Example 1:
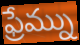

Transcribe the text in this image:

ఫ్రేమ్ను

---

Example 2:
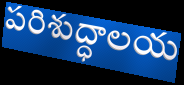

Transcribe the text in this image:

పరిశుద్ధాలయ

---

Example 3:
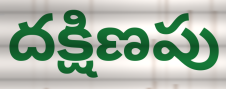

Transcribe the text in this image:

దక్షిణపు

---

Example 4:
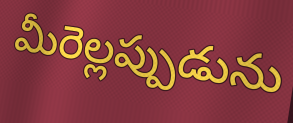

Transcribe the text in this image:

మీరెల్లప్పుడును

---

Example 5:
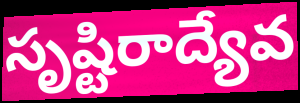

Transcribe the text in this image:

సృష్టిరాద్యేవ